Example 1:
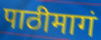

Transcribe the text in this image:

पाठीमागं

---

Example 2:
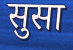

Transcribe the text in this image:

सुसा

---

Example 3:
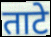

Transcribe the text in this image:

ताटे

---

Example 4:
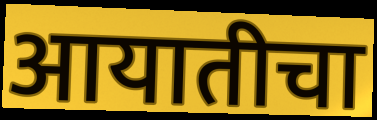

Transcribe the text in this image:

आयातीचा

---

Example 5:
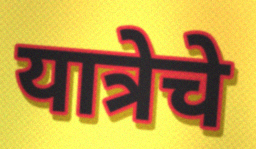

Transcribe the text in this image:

यात्रेचे